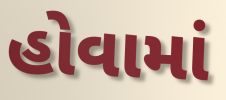
હોવામાં